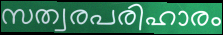
സത്വരപരിഹാരം